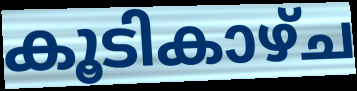
കൂടികാഴ്ച